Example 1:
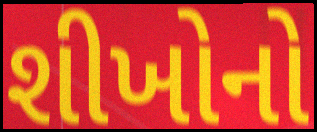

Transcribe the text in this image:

શીખોનો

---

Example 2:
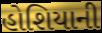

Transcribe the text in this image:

હોશિયાની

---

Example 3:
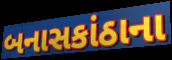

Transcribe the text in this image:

બનાસકાંઠાના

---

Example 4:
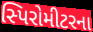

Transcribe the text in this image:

સ્પિરોમીટરના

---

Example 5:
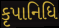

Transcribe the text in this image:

કૃપાનિધિ